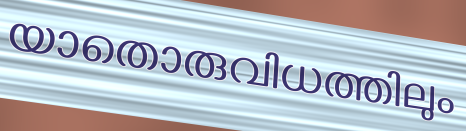
യാതൊരുവിധത്തിലും